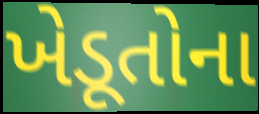
ખેડૂતોના